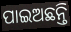
ପାଇଅଛନ୍ତି